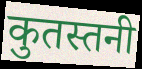
कुतस्तनी